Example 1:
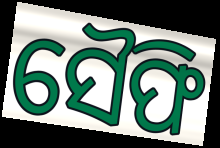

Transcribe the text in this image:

ସୈଫି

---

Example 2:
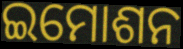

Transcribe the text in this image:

ଇମୋଶନ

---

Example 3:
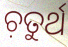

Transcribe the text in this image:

ଚ଼ତୁର୍ଥ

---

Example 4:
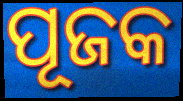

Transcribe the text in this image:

ପୂଜକ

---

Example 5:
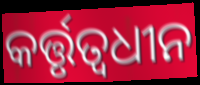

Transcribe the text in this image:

କର୍ତ୍ତୃତ୍ୱଧୀନ